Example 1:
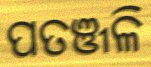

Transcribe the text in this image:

ପତଞ୍ଜଳି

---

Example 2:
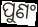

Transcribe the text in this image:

ପୁଣଂ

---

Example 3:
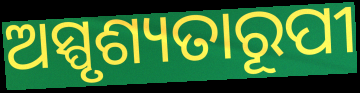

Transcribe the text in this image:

ଅସ୍ପୃଶ୍ୟତାରୂପୀ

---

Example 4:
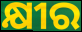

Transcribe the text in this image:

କ୍ଷୀର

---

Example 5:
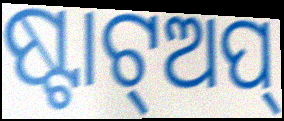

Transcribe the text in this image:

ଷ୍ଟାଟ୍ଅପ୍